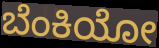
ಬೆಂಕಿಯೋ